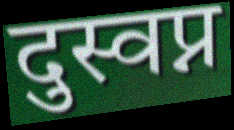
दुस्वप्न